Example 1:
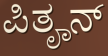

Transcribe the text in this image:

ಪಿತೄನ್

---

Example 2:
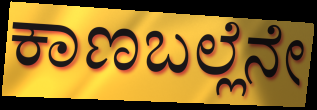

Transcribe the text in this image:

ಕಾಣಬಲ್ಲೆನೇ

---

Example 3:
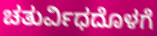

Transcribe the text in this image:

ಚತುರ್ವಿಧದೊಳಗೆ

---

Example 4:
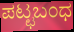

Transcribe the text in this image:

ಪಟ್ಟಬಂಧ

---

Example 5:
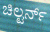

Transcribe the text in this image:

ಚಿಲ್ಟರ್ನ್